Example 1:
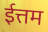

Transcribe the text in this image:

ईत्तम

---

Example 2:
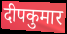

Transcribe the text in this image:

दीपकुमार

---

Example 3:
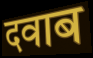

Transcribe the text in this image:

दवाब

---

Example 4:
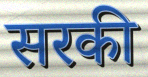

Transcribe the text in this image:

सरकी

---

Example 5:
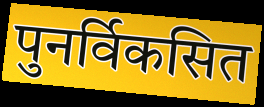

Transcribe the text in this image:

पुनर्विकसित